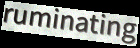
ruminating